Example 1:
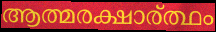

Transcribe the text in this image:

ആത്മരക്ഷാര്ത്ഥം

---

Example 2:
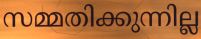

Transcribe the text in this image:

സമ്മതിക്കുന്നില്ല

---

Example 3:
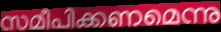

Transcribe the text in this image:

സമീപിക്കണമെന്നു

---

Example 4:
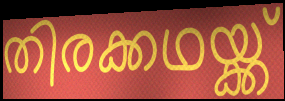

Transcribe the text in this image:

തിരക്കഥയ്ക്ക്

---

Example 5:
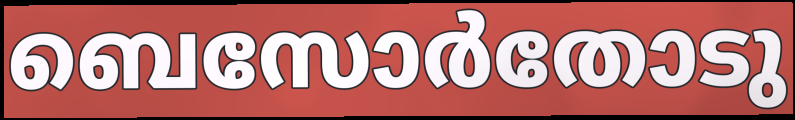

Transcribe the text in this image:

ബെസോർതോടു